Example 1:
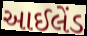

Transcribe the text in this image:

આઈલેંડ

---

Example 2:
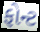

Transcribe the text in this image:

ફોન્ટ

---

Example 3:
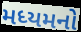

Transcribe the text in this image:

મધ્યમનો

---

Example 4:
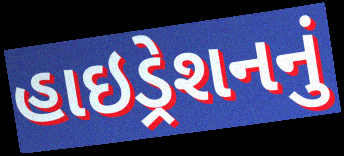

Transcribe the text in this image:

હાઇડ્રેશનનું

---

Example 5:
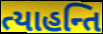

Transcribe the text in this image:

ત્યાહન્તિ